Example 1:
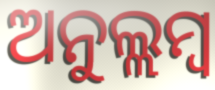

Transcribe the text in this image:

ଅନୁଲ୍ଲମ୍ବ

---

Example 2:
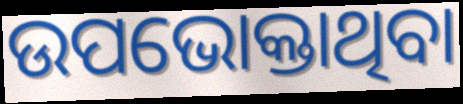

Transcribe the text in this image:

ଉପଭୋକ୍ତାଥିବା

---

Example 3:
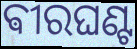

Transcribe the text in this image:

ଵୀରଘଣ୍ଟ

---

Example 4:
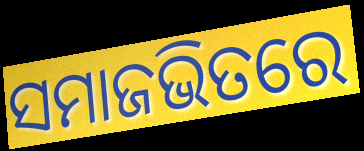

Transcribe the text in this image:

ସମାଜଭିତରେ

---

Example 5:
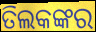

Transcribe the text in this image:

ତିଲକଙ୍କର